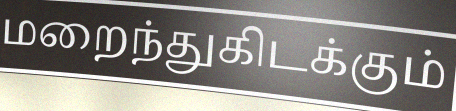
மறைந்துகிடக்கும்